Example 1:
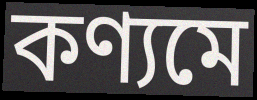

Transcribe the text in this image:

কণ্যমে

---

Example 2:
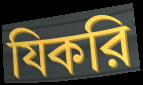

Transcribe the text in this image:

যিকরি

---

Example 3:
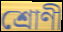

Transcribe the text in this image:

শ্রোণী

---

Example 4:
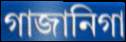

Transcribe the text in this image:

গাজানিগা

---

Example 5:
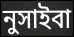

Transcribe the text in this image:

নুসাইবা